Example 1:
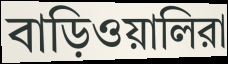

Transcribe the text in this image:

বাড়িওয়ালিরা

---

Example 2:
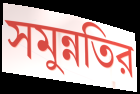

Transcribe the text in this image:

সমুন্নতির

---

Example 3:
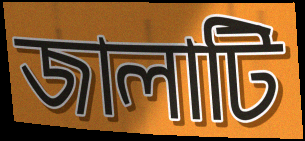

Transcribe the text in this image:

জালাটি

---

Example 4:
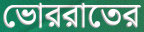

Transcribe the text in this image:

ভোররাতের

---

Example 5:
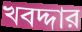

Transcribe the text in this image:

খবদ্দার